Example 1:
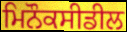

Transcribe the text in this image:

ਮਿਨੌਕਸੀਡੀਲ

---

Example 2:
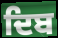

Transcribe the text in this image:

ਦਿਬ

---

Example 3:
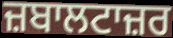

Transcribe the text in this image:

ਜ਼ਬਾਲਟਾਜ਼ਰ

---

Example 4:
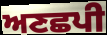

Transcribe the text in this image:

ਅਣਛਪੀ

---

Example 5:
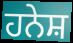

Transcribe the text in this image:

ਹਨੇਸ਼